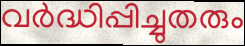
വർദ്ധിപ്പിച്ചുതരും